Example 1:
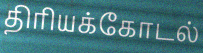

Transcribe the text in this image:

திரியக்கோடல்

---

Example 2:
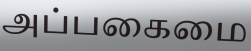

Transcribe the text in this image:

அப்பகைமை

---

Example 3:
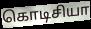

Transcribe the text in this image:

கொடிசியா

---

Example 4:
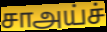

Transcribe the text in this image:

சாஅய்ச்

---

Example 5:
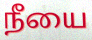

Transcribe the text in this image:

நீயை